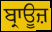
ਬ੍ਰਾਊਜ਼